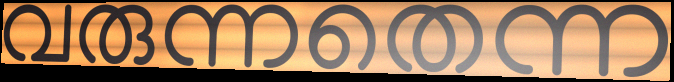
വരുന്നതെന്ന